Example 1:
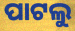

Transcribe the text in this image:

ପାଟଲୁ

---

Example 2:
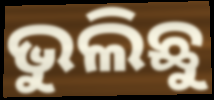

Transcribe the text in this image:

ଭୁଲିଛୁ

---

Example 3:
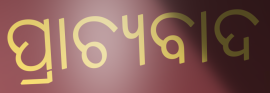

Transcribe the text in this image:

ପ୍ରାଚ୍ୟବାଦ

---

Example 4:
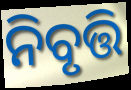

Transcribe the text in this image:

ନିବୃତ୍ତି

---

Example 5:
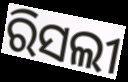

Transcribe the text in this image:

ରିସଲୀ